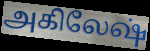
அகிலேஷ்